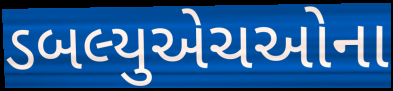
ડબલ્યુએચઓના